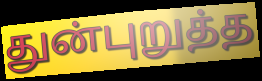
துன்புறுத்த